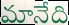
మానేది